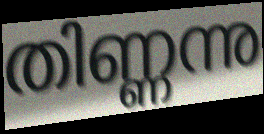
തിണ്ണന്നു